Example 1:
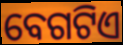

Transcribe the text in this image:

ବେଗଟିଏ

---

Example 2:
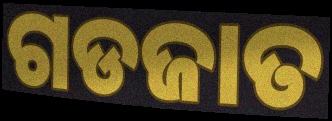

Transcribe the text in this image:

ଗଡଜାତ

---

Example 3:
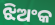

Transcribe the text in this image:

ଝିଅଂକ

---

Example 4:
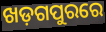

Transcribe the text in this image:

ଖଡ଼ଗପୁରରେ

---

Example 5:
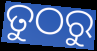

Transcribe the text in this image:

ତୁଠରୁ